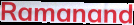
Ramanand